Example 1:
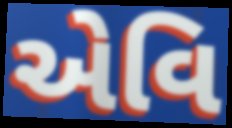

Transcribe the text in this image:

એવિ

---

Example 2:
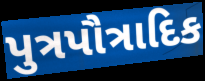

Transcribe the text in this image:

પુત્રપૌત્રાદિક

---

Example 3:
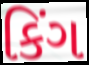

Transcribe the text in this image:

કિંગ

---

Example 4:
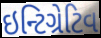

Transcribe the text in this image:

ઇન્ટિગ્રેટિવ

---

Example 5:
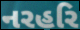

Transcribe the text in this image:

નરહરિ